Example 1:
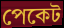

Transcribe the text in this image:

পেকেট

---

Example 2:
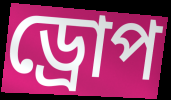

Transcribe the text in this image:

ড্ৰোপ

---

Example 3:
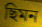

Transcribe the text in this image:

ছিমন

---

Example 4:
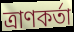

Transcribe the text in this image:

ত্ৰাণকৰ্তা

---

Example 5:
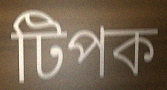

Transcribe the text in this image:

টিপক